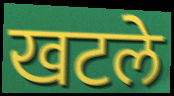
खटले